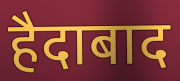
हैदाबाद